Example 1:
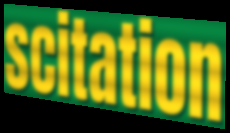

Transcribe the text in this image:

scitation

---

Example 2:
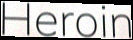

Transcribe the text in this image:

Heroin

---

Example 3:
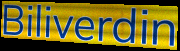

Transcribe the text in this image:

Biliverdin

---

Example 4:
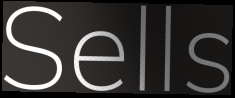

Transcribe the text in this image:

Sells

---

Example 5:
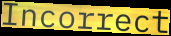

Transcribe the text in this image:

Incorrect